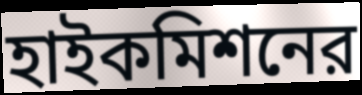
হাইকমিশনের